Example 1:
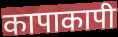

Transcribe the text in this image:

कापाकापी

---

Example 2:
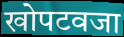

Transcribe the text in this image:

खोपटवजा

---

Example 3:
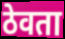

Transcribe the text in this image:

ठेवता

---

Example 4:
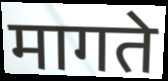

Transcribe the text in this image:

मागते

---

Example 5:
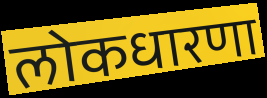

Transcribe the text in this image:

लोकधारणा